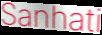
Sanhati